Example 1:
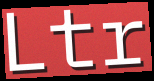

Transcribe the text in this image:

Ltr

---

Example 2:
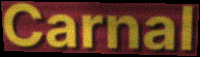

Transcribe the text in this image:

Carnal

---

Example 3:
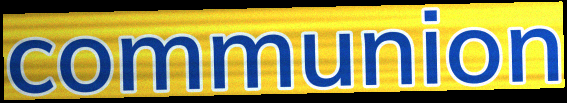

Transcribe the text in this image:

communion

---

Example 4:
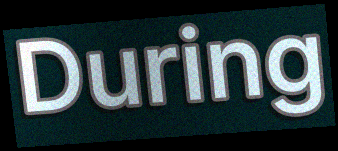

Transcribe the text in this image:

During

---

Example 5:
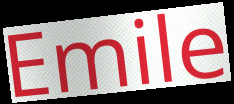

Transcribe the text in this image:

Emile